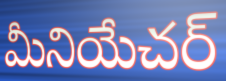
మీనియేచర్